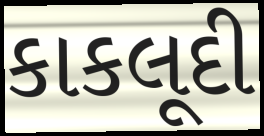
કાકલૂદી